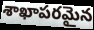
శాఖాపరమైన